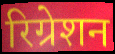
रिग्रेशन